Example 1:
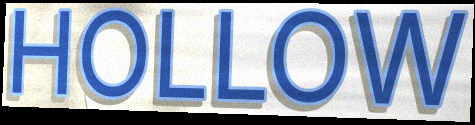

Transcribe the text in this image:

HOLLOW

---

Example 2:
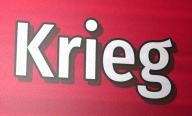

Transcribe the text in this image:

Krieg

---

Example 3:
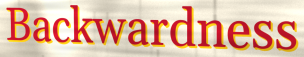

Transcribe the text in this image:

Backwardness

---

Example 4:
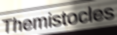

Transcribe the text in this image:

Themistocles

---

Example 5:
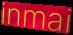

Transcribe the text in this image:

inmai